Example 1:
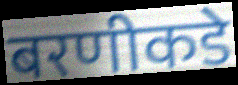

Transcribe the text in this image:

बरणीकडे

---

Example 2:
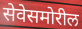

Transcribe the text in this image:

सेवेसमोरील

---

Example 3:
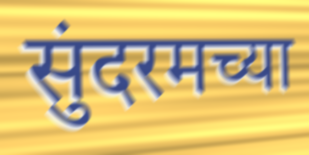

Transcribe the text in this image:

सुंदरमच्या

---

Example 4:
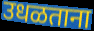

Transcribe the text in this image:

उधळताना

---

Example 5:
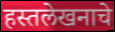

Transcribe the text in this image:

हस्तलेखनाचे